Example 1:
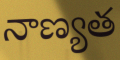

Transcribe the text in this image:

నాణ్యత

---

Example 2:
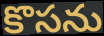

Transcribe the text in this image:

కొసను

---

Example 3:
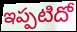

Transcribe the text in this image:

ఇప్పటిదో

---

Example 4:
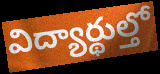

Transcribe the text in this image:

విద్యార్థుల్తో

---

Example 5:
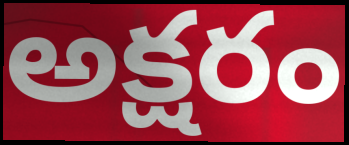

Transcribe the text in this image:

అక్షరం